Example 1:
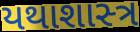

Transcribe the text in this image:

યથાશાસ્‍ત્ર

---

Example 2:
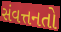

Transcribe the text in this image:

સંવત્તનતો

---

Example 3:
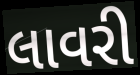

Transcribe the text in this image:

લાવરી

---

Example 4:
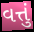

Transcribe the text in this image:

વત્તું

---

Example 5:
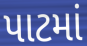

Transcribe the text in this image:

પાટમાં